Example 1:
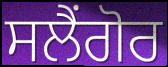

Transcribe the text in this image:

ਸਲੈਂਗੋਰ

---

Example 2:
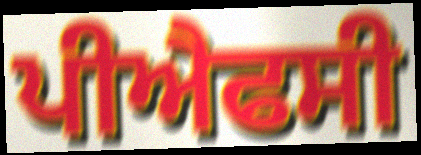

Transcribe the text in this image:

ਪੀਐਫਸੀ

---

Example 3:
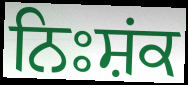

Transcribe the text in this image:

ਨਿਃਸ਼ਂਕ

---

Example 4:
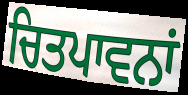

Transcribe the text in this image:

ਚਿਤਪਾਵਨਾਂ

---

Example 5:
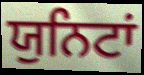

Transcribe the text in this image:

ਯੁਨਿਟਾਂ